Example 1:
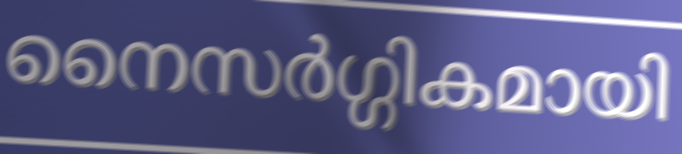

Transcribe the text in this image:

നൈസർഗ്ഗികമായി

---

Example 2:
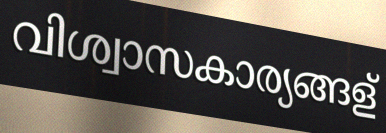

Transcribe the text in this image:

വിശ്വാസകാര്യങ്ങള്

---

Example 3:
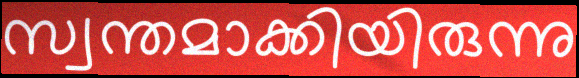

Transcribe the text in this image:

സ്വന്തമാക്കിയിരുന്നു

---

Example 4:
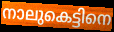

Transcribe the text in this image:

നാലുകെട്ടിനെ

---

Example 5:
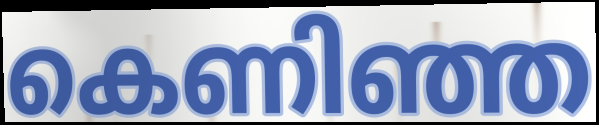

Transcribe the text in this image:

കെണിഞ്ഞ